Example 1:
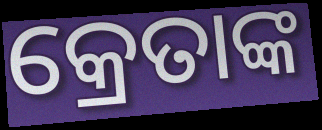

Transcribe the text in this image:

କ୍ରେତାଙ୍କ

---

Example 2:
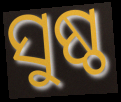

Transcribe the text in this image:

ସୁଷ୍ଠ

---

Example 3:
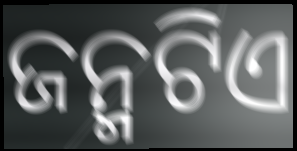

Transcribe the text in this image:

ଜନ୍ମଟିଏ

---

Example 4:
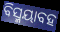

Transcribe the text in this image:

ବିସ୍ମୟାବହ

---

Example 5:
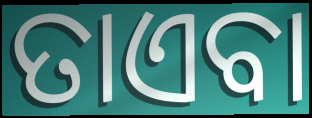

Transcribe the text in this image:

ତାଏବା